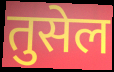
तुसेल